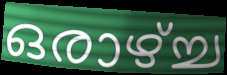
ഒരാഴ്ച്ച